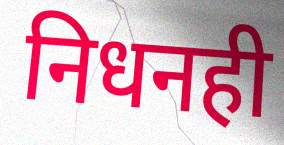
निधनही